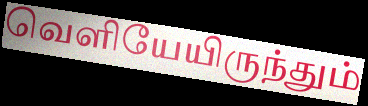
வெளியேயிருந்தும்